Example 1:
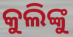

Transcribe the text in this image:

କୁଲିଙ୍କୁ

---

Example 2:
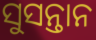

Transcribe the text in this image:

ସୁସନ୍ତାନ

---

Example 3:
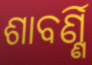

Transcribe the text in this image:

ଶାବର୍ଣ୍ଣି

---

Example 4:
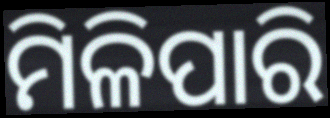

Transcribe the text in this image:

ମିଳିପାରି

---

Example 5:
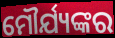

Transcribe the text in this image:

ମୌର୍ଯ୍ୟଙ୍କର